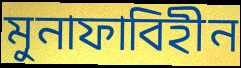
মুনাফাবিহীন